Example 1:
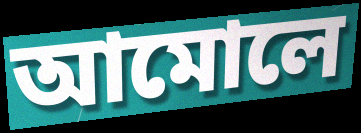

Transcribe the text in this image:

আমোলে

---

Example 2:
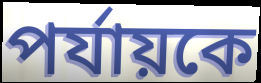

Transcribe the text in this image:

পর্যায়কে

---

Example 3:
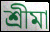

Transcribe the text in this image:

শ্রীমা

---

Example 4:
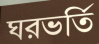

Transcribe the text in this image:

ঘরভর্তি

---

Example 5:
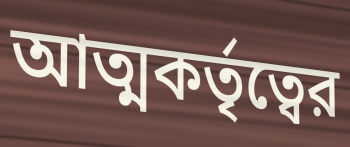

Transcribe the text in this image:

আত্মকর্তৃত্বের